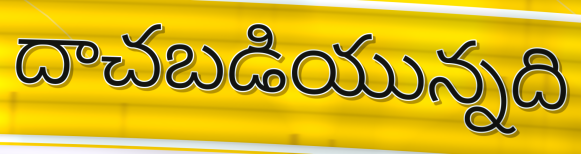
దాచబడియున్నది